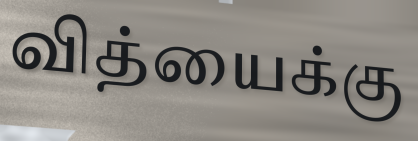
வித்யைக்கு